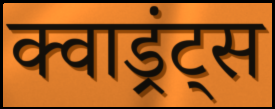
क्वाड्रंट्स